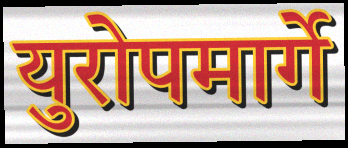
युरोपमार्गे